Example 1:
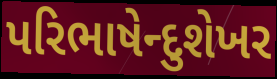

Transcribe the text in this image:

પરિભાષેન્દુશેખર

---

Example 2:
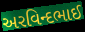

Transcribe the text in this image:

અરવિન્દભાઈ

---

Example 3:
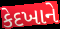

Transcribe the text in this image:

કેદખાને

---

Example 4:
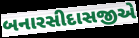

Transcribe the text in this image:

બનારસીદાસજીએ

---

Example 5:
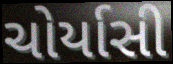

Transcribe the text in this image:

ચોર્યાસી